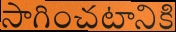
సాగించటానికి